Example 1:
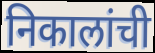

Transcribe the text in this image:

निकालांची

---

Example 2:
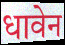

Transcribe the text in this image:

धावेन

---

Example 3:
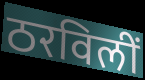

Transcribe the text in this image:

ठरविलीं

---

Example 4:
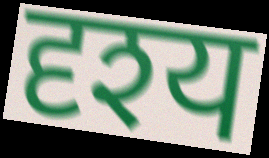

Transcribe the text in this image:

दृश्‍य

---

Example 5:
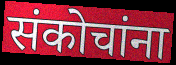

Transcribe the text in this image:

संकोचांना